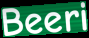
Beeri